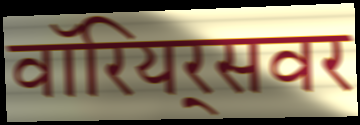
वॉरियर्सवर